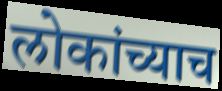
लोकांच्याच